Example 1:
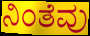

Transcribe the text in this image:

ನಿಂತೆವು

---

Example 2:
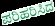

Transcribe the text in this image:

ಪರಿಹರಿಸಿದ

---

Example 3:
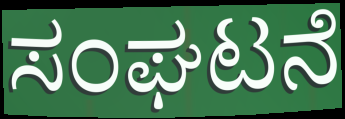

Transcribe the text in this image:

ಸಂಘಟನೆ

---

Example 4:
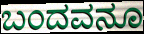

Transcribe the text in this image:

ಬಂದವನೂ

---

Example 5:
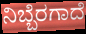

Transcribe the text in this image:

ನಿಬ್ಬೆರಗಾದೆ